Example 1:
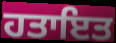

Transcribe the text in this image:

ਹਤਾਇਤ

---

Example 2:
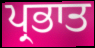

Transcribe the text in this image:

ਪ੍ਰਭਾਤ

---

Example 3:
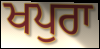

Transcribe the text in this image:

ਖਪੁਰਾ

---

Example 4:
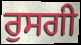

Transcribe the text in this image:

ਰੁਸਗੀ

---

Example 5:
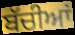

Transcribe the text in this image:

ਬੱਚੀਆਂ